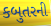
કબુતરની